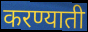
करण्याती